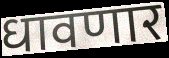
धावणार